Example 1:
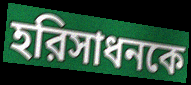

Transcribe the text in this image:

হরিসাধনকে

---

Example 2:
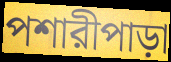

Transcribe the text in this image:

পশারীপাড়া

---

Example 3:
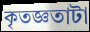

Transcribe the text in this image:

কৃতজ্ঞতাটা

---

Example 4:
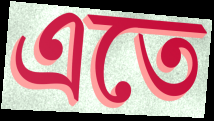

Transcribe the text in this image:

এতে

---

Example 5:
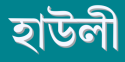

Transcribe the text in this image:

হাউলী